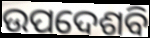
ଉପଦେଶବି